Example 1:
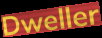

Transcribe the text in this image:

Dweller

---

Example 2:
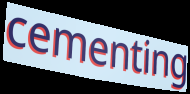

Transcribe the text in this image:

cementing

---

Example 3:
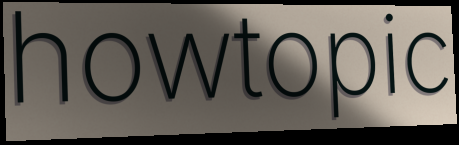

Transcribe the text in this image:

howtopic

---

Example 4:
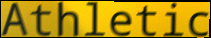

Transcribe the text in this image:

Athletic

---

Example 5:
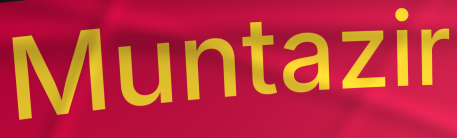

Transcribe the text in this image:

Muntazir